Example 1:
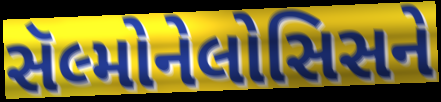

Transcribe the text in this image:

સૅલ્મોનેલોસિસને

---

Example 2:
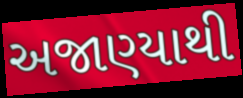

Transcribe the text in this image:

અજાણ્યાથી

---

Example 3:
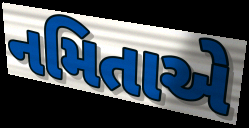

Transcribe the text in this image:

નમિતાએ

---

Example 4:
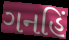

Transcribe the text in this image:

ગનહિં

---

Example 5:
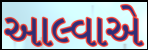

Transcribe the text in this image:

આલ્વાએ